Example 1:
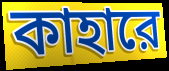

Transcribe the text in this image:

কাহারে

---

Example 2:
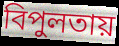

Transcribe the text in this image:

বিপুলতায়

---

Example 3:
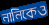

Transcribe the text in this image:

নানিকেও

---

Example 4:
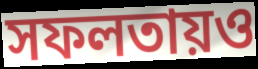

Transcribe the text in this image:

সফলতায়ও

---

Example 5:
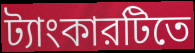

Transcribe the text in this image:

ট্যাংকারটিতে